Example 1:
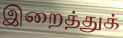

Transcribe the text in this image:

இறைத்துக்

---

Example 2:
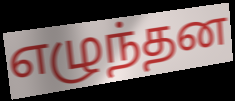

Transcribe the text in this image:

எழுந்தன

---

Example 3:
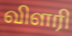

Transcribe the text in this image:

விளரி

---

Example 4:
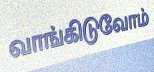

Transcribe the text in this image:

வாங்கிடுவோம்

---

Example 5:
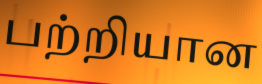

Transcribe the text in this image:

பற்றியான